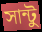
সান্টু